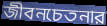
জীবনচেতনার